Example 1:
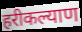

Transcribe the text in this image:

हरीकल्याण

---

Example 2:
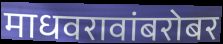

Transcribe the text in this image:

माधवरावांबरोबर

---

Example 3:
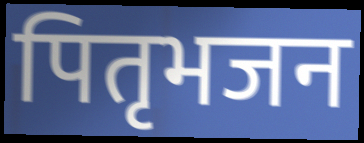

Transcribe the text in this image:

पितृभजन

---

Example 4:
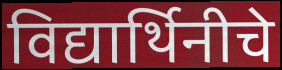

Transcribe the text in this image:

विद्यार्थिनीचे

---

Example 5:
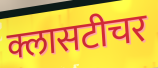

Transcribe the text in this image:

क्लासटीचर